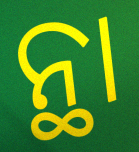
ନ୍ଥା